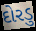
દોરડુ